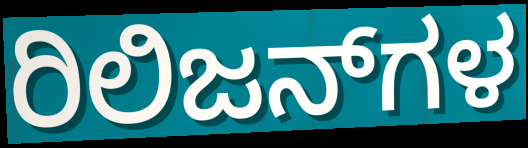
ರಿಲಿಜನ್‌ಗಳ